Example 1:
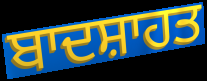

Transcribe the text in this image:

ਬਾਦਸ਼ਾਹਤ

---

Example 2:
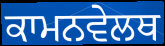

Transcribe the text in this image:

ਕਾਮਨਵੇਲਥ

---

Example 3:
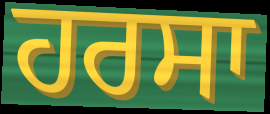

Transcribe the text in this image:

ਹਰਸਾ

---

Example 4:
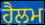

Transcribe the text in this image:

ਹੈਲਮ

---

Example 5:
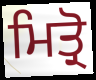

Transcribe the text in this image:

ਮਿਤ੍ਰੋ